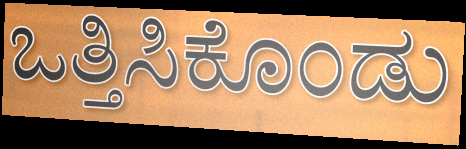
ಒತ್ತಿಸಿಕೊಂಡು